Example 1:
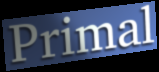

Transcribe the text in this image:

Primal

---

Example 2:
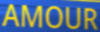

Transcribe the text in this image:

AMOUR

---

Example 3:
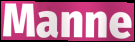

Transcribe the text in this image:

Manne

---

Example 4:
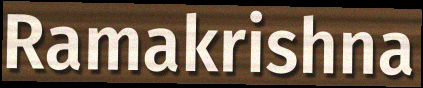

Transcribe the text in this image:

Ramakrishna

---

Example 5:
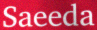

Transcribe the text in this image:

Saeeda